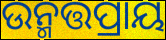
ଉନ୍ମତ୍ତପ୍ରାୟ